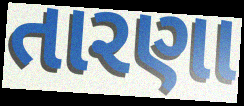
તારણા